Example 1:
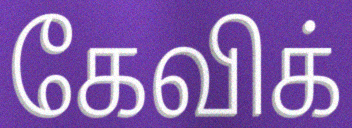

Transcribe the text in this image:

கேவிக்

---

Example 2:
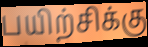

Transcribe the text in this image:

பயிற்சிக்கு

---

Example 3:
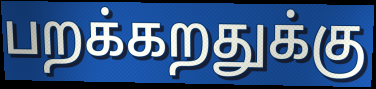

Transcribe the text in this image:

பறக்கறதுக்கு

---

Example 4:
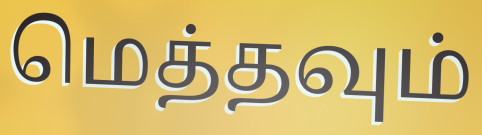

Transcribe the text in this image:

மெத்தவும்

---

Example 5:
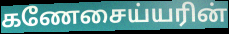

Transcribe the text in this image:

கணேசைய்யரின்